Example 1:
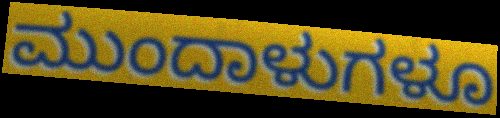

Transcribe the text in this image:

ಮುಂದಾಳುಗಳೂ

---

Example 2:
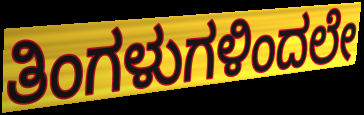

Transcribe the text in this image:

ತಿಂಗಳುಗಳಿಂದಲೇ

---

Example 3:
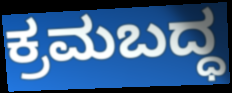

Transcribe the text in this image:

ಕ್ರಮಬದ್ಧ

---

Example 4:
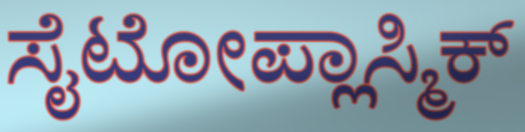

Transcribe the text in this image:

ಸೈಟೋಪ್ಲಾಸ್ಮಿಕ್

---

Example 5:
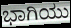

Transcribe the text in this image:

ಭಾಗಿಯು